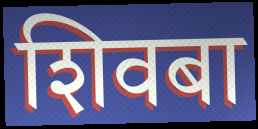
शिवबा